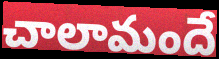
చాలామందే